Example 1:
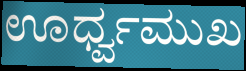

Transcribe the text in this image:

ಊರ್ಧ್ವಮುಖ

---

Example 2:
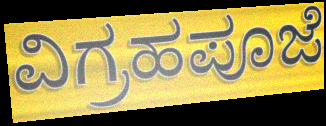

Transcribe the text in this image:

ವಿಗ್ರಹಪೂಜೆ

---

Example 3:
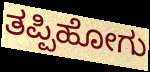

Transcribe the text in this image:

ತಪ್ಪಿಹೋಗು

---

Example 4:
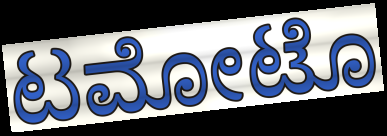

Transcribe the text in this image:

ಟಮೋಟೊ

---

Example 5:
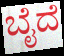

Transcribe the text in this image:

ಬೈದೆ